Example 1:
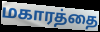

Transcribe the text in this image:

மகாரத்தை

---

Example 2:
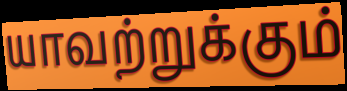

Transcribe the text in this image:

யாவற்றுக்கும்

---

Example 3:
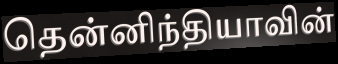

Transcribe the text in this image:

தென்னிந்தியாவின்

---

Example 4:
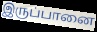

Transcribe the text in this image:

இருப்பானை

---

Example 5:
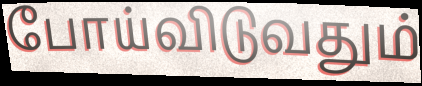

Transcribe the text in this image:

போய்விடுவதும்